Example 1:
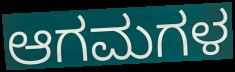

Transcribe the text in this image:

ಆಗಮಗಳ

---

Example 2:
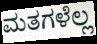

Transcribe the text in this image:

ಮತಗಳೆಲ್ಲ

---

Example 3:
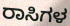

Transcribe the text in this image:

ರಾಸಿಗಳ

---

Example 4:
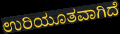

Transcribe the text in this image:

ಉರಿಯೂತವಾಗಿದೆ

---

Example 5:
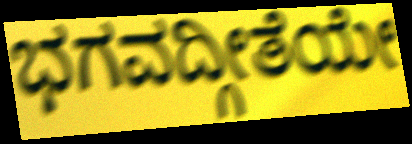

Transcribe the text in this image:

ಭಗವದ್ಗೀತೆಯೇ